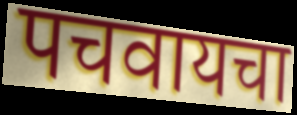
पचवायचा